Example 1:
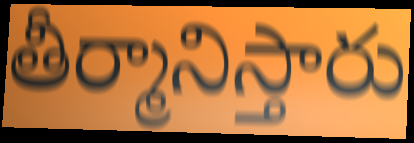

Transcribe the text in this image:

తీర్మానిస్తారు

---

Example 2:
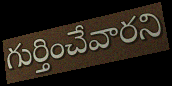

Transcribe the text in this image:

గుర్తించేవారని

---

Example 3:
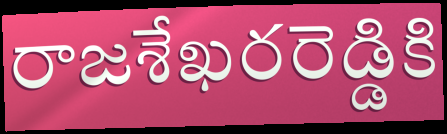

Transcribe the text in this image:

రాజశేఖరరెడ్డికి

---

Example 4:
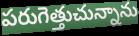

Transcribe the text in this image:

పరుగెత్తుచున్నాను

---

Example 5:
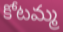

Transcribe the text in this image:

కోటమ్మ